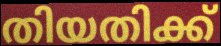
തിയതിക്ക്